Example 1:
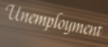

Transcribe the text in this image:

Unemployment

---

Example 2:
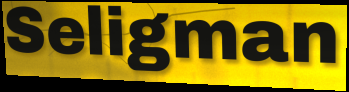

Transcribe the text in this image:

Seligman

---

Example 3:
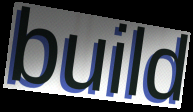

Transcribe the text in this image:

build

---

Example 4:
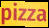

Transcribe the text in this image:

pizza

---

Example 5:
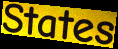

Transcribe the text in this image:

States